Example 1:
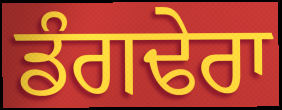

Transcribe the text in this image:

ਡੰਗਢੇਰਾ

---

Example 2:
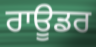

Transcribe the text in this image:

ਰਾਊਡਰ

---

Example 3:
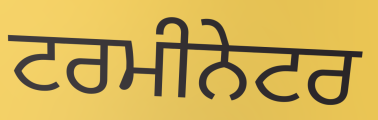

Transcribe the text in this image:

ਟਰਮੀਨੇਟਰ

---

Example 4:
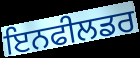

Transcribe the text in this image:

ਇਨਫੀਲਡਰ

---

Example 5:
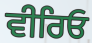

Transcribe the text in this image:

ਵੀਰਿਓ